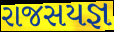
રાજસયજ્ઞ